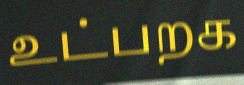
உட்பறக